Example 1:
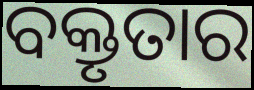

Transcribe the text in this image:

ବକ୍ତୃତାର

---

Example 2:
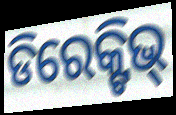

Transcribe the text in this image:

ଡିରେକ୍ଟିଭ୍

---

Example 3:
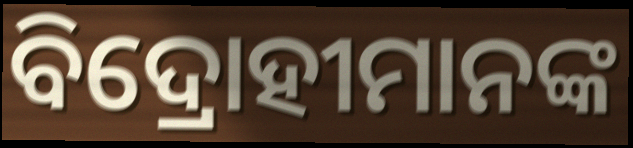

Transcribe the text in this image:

ବିଦ୍ରୋହୀମାନଙ୍କ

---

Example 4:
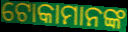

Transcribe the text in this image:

ଟୋକାମାନଙ୍କ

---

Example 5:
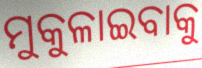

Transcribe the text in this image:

ମୁକୁଳାଇବାକୁ